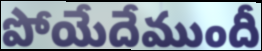
పోయేదేముందీ